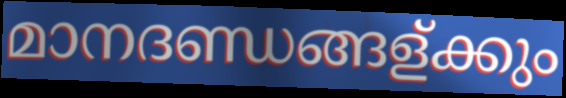
മാനദണ്ഡങ്ങള്ക്കും